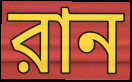
রান